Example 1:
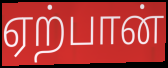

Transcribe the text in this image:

ஏற்பான்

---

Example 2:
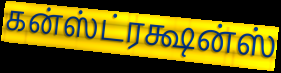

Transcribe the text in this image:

கன்ஸ்ட்ரக்ஷன்ஸ்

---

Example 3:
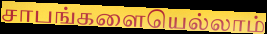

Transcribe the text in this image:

சாபங்களையெல்லாம்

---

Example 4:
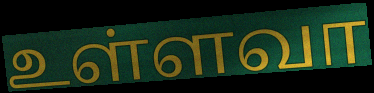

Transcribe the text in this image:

உள்ளவா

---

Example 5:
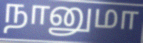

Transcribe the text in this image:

நானுமா